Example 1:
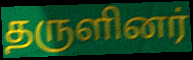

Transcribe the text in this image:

தருளினர்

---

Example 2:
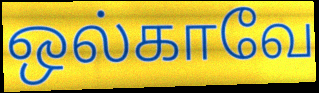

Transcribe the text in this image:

ஒல்காவே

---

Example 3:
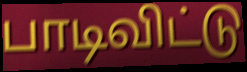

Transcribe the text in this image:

பாடிவிட்டு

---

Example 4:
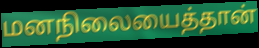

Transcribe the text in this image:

மனநிலையைத்தான்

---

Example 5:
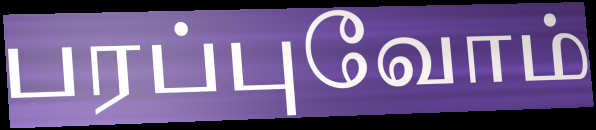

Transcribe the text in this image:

பரப்புவோம்